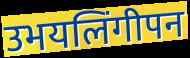
उभयलिंगीपन